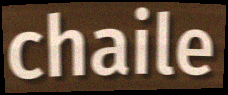
chaile